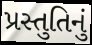
પ્રસ્તુતિનું